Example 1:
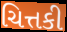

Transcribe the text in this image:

ચિત્તકી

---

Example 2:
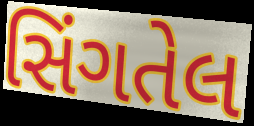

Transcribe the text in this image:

સિંગતેલ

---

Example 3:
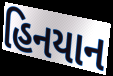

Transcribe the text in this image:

હિનયાન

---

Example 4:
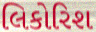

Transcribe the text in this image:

લિકોરિશ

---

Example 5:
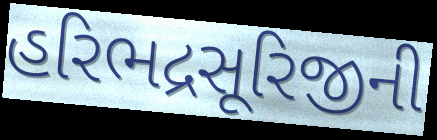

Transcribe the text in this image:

હરિભદ્રસૂરિજીની